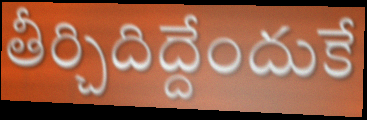
తీర్చిదిద్దేందుకే